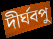
দীর্ঘবপু